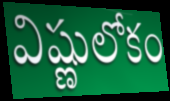
విష్ణులోకం